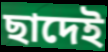
ছাদেই